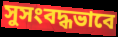
সুসংবদ্ধভাবে